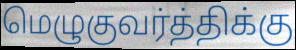
மெழுகுவர்த்திக்கு